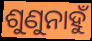
ଶୁଣୁନାହୁଁ